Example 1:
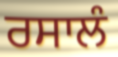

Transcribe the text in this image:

ਰਸਾਲੰ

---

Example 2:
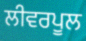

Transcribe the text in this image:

ਲੀਵਰਪੂਲ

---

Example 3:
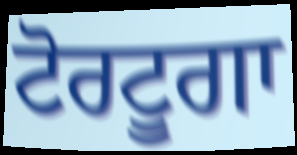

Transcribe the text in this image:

ਟੋਰਟੂਗਾ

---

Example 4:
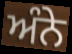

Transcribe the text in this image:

ਅੰਨੇ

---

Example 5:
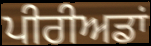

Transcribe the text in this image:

ਪੀਰੀਅਡਾਂ